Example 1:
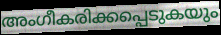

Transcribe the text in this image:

അംഗീകരിക്കപ്പെടുകയും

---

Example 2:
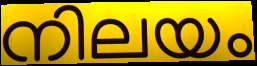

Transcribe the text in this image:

നിലയം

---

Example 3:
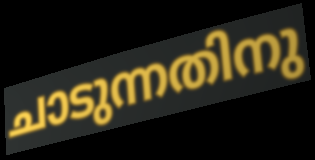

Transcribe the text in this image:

ചാടുന്നതിനു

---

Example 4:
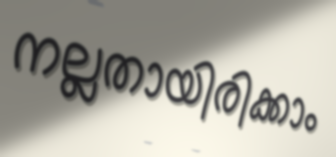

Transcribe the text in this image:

നല്ലതായിരിക്കാം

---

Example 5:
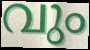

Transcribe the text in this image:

വും